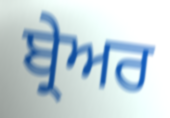
ਬ੍ਰੇਅਰ